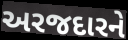
અરજદારને